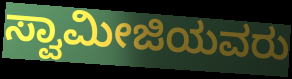
ಸ್ವಾಮೀಜಿಯವರು